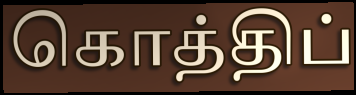
கொத்திப்